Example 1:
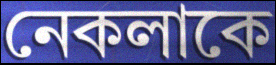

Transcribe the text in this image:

নেকলাকে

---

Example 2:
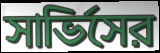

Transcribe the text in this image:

সার্ভিসের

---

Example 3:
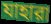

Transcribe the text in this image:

যাহারা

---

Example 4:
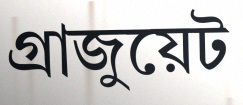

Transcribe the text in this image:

গ্রাজুয়েট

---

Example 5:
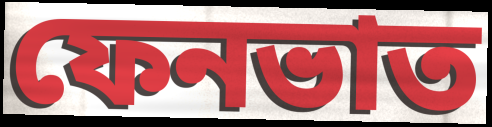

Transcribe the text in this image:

ফেনভাত